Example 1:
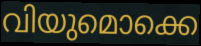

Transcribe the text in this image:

വിയുമൊക്കെ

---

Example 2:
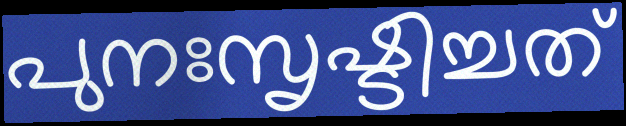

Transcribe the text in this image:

പുനഃസൃഷ്ടിച്ചത്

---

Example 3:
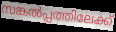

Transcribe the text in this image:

സങ്കൽപ്പത്തിലേക്ക്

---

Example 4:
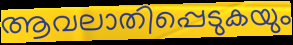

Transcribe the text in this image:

ആവലാതിപ്പെടുകയും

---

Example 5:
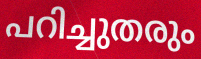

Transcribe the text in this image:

പറിച്ചുതരും